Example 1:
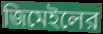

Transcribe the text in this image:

জিমেইলের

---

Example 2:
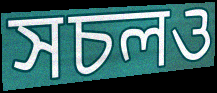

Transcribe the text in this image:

সচলও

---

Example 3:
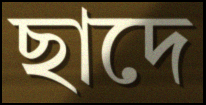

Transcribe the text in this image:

ছাদে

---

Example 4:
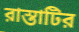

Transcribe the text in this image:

রাস্তাটির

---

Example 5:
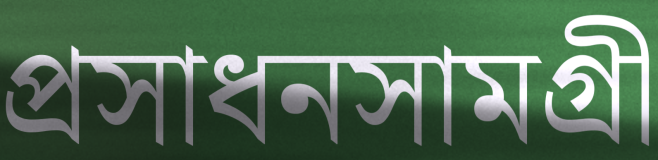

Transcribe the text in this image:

প্রসাধনসামগ্রী